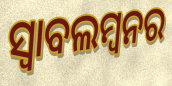
ସ୍ବାବଲମ୍ବନର